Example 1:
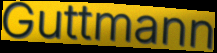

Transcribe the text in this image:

Guttmann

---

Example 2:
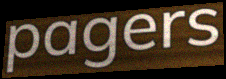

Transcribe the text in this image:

pagers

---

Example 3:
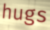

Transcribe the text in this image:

hugs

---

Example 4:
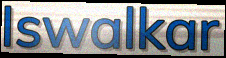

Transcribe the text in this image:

Iswalkar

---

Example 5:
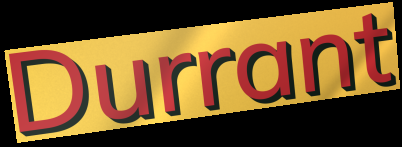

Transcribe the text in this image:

Durrant